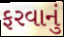
ફરવાનું